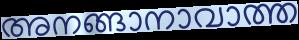
അനങ്ങാനാവാത്ത